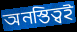
অনস্তিত্বই